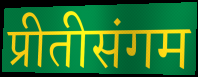
प्रीतीसंगम